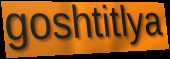
goshtitlya